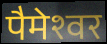
पैमेश्वर